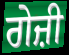
ਗੇਜ਼ੀ